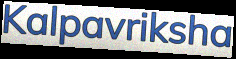
Kalpavriksha